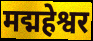
मद्महेश्वर